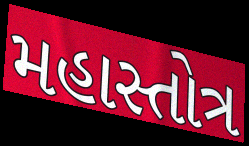
મહાસ્તોત્ર